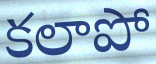
కలాపో